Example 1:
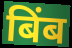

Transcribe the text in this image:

बिंब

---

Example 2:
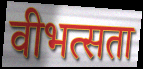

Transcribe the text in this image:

वीभत्सता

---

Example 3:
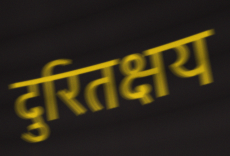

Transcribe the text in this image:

दुरितक्षय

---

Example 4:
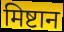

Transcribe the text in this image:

मिष्टान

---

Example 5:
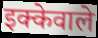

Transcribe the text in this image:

इक्केवाले